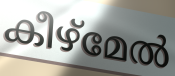
കീഴ്മേൽ